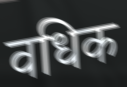
वधिक